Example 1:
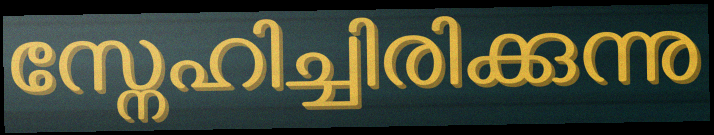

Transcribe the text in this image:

സ്നേഹിച്ചിരിക്കുന്നു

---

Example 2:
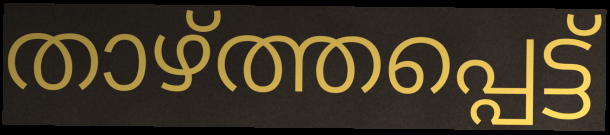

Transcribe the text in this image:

താഴ്ത്തപ്പെട്ട്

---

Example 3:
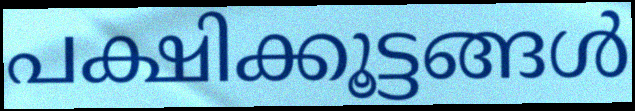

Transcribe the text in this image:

പക്ഷിക്കൂട്ടങ്ങൾ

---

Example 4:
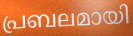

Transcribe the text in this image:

പ്രബലമായി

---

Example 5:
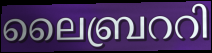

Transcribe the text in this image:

ലൈബ്രററി